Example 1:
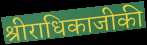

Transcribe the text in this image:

श्रीराधिकाजीकी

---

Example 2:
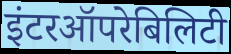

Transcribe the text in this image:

इंटरऑपरेबिलिटी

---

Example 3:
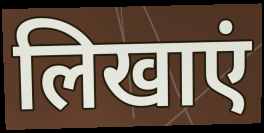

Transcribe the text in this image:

लिखाएं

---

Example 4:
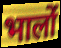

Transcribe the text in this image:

भालों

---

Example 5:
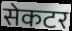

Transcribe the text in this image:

सेकटर